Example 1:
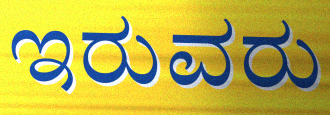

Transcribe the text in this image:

ಇರುವರು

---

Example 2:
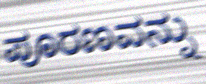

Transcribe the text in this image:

ಪೂರಣವನ್ನು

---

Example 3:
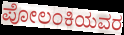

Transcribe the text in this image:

ಪೋಲಂಕಿಯವರ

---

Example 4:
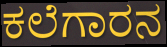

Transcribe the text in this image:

ಕಲೆಗಾರನ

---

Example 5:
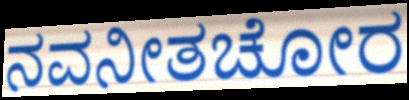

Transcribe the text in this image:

ನವನೀತಚೋರ